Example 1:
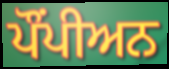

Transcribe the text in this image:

ਪੌਂਪੀਅਨ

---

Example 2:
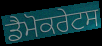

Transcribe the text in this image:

ਡੈਮੋਕਰੇਟਸ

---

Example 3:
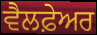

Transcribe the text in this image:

ਵੈਲਫ਼ੇਅਰ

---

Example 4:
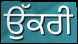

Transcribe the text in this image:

ਉੱਕਰੀ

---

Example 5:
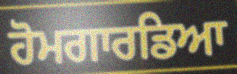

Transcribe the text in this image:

ਹੋਮਗਾਰਡਿਆ